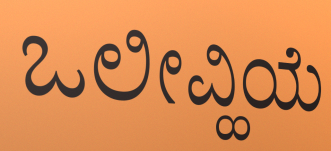
ಒಲೀವ್ಹಿಯೆ